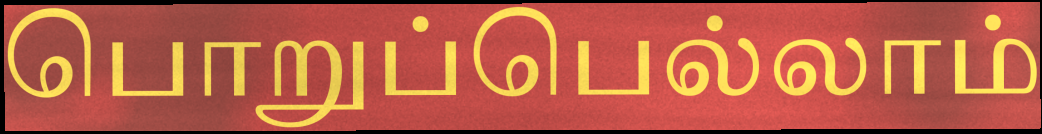
பொறுப்பெல்லாம்